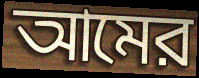
আমের